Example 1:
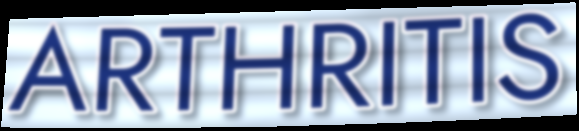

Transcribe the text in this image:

ARTHRITIS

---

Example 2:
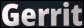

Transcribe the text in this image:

Gerrit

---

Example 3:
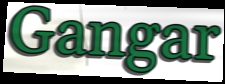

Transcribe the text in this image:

Gangar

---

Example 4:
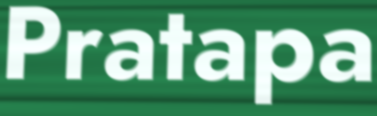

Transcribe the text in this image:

Pratapa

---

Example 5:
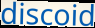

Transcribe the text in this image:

discoid